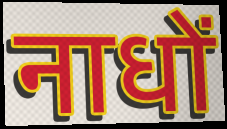
नाधों